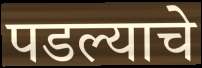
पडल्याचे